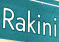
Rakini